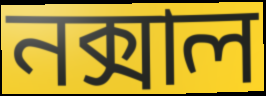
নক্সাল